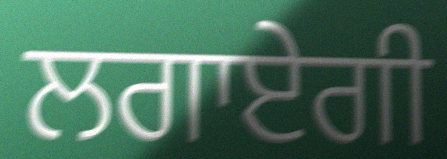
ਲਗਾਏਗੀ